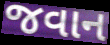
જવાન